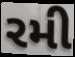
રમી